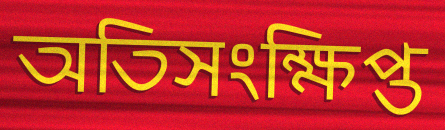
অতিসংক্ষিপ্ত